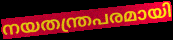
നയതന്ത്രപരമായി